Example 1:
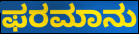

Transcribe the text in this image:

ಫರಮಾನು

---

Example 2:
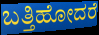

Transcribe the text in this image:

ಬತ್ತಿಹೋದರೆ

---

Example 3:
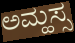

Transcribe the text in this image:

ಅಮ್ಹಸ್ಸ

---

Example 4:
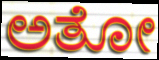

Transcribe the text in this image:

ಅತೋ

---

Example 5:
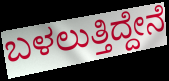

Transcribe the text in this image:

ಬಳಲುತ್ತಿದ್ದೇನೆ